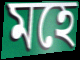
মহে